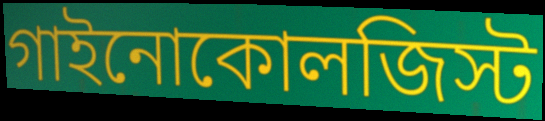
গাইনোকোলজিস্ট